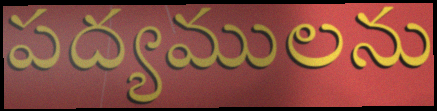
పద్యములను